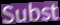
Subst